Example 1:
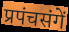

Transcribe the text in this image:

प्रपंचसंगें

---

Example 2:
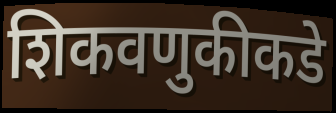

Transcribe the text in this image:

शिकवणुकीकडे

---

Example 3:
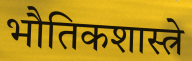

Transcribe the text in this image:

भौतिकशास्त्रे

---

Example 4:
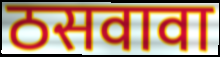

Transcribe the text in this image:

ठसवावा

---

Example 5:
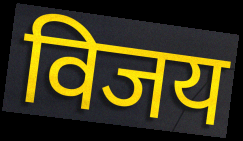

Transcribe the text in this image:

विजय